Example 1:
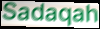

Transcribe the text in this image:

Sadaqah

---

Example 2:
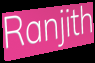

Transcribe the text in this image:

Ranjith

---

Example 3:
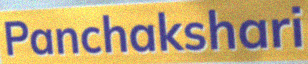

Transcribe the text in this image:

Panchakshari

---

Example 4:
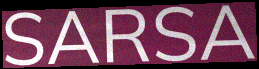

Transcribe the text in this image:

SARSA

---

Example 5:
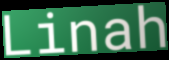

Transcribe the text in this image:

Linah